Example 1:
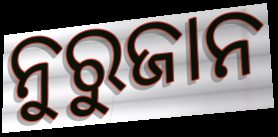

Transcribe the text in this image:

ନୁରୁଜାନ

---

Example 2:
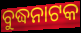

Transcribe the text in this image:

ବୁଦ୍ଧନାଟକ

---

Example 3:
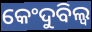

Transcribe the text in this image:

କେଂଦୁବିଲ୍ୱ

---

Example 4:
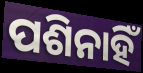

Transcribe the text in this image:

ପଶିନାହିଁ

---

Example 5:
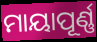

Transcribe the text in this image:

ମାୟାପୂର୍ଣ୍ଣ